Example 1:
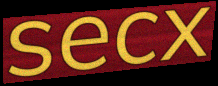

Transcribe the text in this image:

secx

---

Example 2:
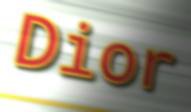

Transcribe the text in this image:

Dior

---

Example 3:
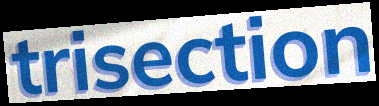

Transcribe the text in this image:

trisection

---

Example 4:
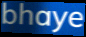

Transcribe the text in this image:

bhaye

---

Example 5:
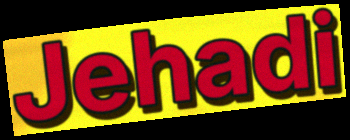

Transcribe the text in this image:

Jehadi